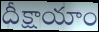
దీక్షాయాం